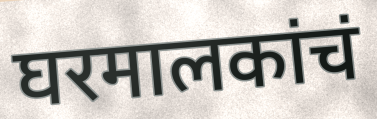
घरमालकांचं